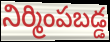
నిర్మింపబడ్డ